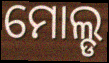
ମୋଲ୍ଡ